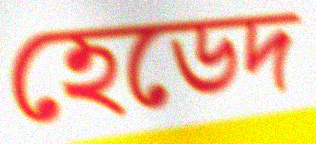
হেডেদ